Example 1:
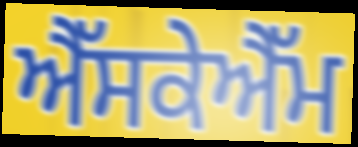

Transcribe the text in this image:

ਐੱਸਕੇਐੱਮ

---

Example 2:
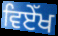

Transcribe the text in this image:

ਵਿਏੱਖ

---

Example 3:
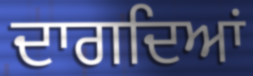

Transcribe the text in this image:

ਦਾਗਦਿਆਂ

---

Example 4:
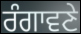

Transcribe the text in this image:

ਰੰਗਾਵਣੇ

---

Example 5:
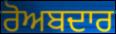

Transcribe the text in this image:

ਰੋਅਬਦਾਰ